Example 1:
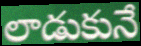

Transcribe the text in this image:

లాడుకునే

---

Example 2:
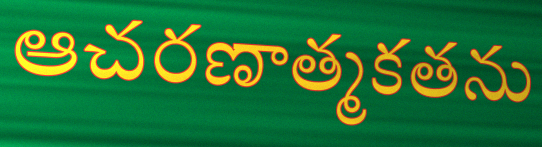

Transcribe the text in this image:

ఆచరణాత్మకతను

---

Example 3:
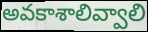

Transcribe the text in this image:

అవకాశాలివ్వాలి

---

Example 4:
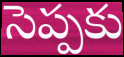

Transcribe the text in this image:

సెప్పకు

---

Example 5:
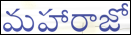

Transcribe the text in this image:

మహారాజో